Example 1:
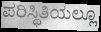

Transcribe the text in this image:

ಪರಿಸ್ಥಿತಿಯಲ್ಲೂ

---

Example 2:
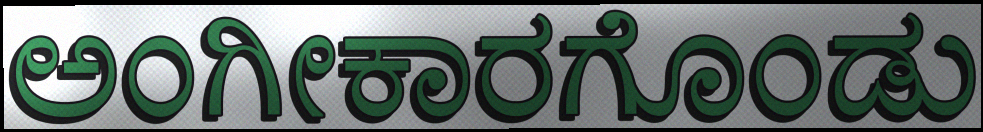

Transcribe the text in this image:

ಅಂಗೀಕಾರಗೊಂಡು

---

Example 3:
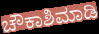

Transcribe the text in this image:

ಚೌಕಾಶಿಮಾಡಿ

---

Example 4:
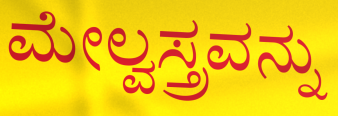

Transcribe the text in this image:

ಮೇಲ್ವಸ್ತ್ರವನ್ನು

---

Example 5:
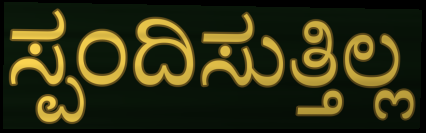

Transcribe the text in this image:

ಸ್ಪಂದಿಸುತ್ತಿಲ್ಲ